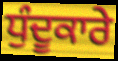
ਧੁੰਦੂਕਾਰੇ